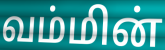
வம்மின்